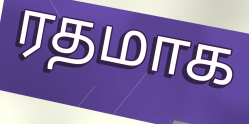
ரதமாக